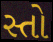
સ્તો